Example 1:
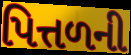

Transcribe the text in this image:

પિત્તળની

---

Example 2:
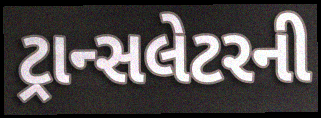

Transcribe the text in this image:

ટ્રાન્સલેટરની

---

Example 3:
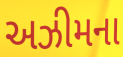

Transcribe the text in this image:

અઝીમના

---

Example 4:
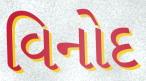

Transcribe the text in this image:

વિનોદ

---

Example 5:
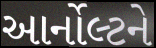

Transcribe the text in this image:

આર્નોલ્ટને